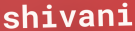
shivani